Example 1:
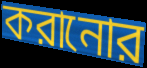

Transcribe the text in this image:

করানোর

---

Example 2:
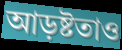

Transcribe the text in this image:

আড়ষ্টতাও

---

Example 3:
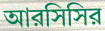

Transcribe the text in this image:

আরসিসির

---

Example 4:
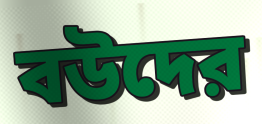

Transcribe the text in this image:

বউদের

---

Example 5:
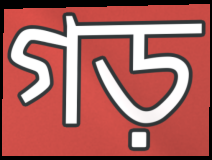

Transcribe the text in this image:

গড়